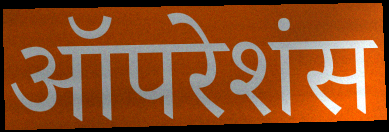
ऑपरेशंस